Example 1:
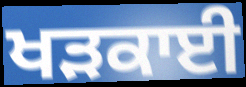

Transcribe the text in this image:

ਖੜਕਾਈ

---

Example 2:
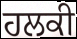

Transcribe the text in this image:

ਹਲਕੀ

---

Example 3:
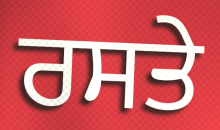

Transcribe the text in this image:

ਰਸਤੇ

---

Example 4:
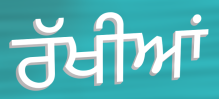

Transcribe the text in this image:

ਰੱਖੀਆਂ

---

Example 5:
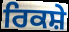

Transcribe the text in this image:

ਰਿਕਸ਼ੇ